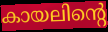
കായലിന്റെ